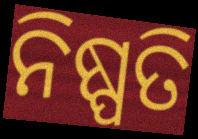
ନିଷ୍ପତି